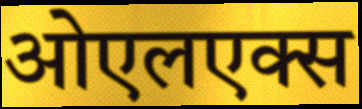
ओएलएक्स